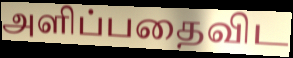
அளிப்பதைவிட